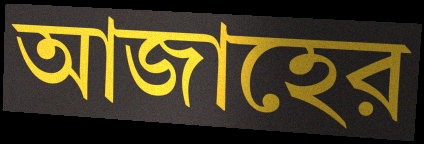
আজাহের